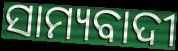
ସାମ୍ୟବାଦୀ